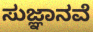
ಸುಜ್ಞಾನವೆ